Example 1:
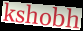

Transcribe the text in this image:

kshobh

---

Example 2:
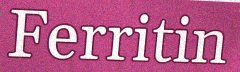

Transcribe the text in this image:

Ferritin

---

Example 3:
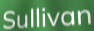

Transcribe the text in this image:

Sullivan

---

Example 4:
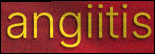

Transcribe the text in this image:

angiitis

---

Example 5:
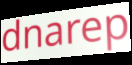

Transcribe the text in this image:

dnarep